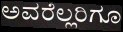
ಅವರೆಲ್ಲರಿಗೂ